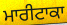
ਮਾਰੀਟਾਕਾ